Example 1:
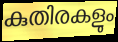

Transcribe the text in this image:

കുതിരകളും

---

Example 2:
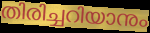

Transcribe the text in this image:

തിരിച്ചറിയാനും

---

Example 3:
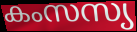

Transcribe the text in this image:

കംസസ്യ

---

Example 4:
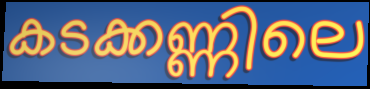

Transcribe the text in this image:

കടക്കണ്ണിലെ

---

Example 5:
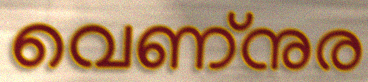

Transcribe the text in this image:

വെണ്നുര